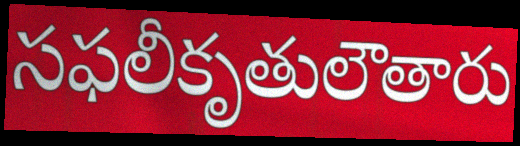
సఫలీకృతులౌతారు